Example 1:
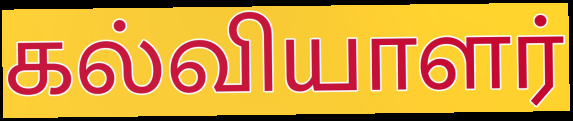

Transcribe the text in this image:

கல்வியாளர்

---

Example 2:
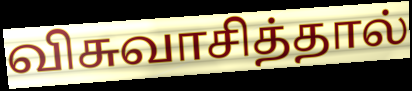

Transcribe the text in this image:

விசுவாசித்தால்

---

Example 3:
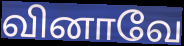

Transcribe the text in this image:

வினாவே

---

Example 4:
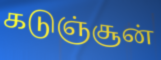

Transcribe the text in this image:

கடுஞ்சூன்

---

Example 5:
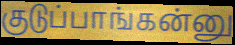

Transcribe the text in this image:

குடுப்பாங்கன்னு